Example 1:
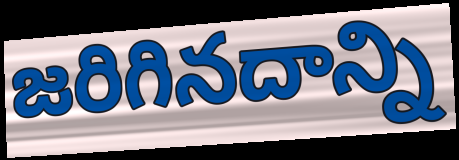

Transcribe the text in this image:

జరిగినదాన్ని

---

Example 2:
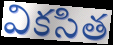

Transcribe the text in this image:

వికసిత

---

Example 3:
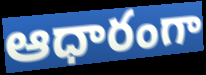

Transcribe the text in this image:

ఆధారంగా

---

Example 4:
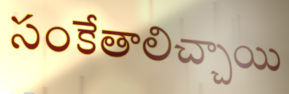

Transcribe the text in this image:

సంకేతాలిచ్చాయి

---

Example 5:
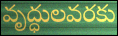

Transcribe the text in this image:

వృద్ధులవరకు